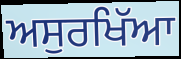
ਅਸੁਰਖਿੱਆ